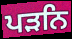
ਪੜਨਿ